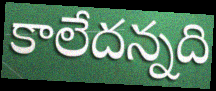
కాలేదన్నది